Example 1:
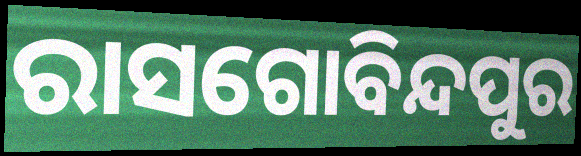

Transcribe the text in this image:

ରାସଗୋବିନ୍ଦପୁର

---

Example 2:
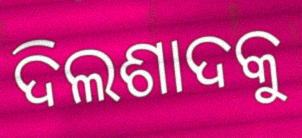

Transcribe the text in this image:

ଦିଲଶାଦକୁ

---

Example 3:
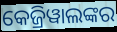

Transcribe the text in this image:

କେଜ୍ରିୱାଲଙ୍କର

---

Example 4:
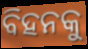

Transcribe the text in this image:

ବିହନକୁ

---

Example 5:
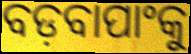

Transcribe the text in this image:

ବଡ଼ବାପାଂକୁ